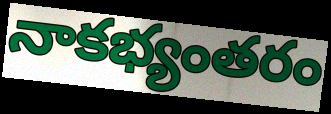
నాకభ్యంతరం